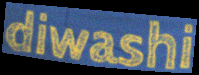
diwashi